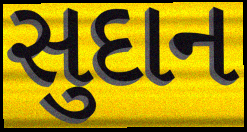
સુદાન